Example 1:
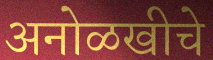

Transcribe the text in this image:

अनोळखीचे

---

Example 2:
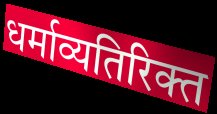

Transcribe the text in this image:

धर्माव्यतिरिक्त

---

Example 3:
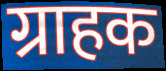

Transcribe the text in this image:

ग्राहक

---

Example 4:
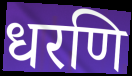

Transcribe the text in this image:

धरणि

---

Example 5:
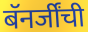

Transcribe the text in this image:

बॅनर्जींची